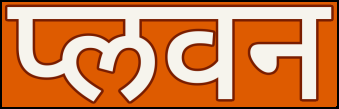
प्लवन